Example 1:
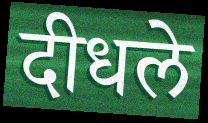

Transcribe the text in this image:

दीधले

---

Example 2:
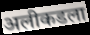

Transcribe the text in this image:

अलीकडला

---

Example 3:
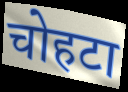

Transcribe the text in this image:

चोहटा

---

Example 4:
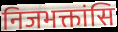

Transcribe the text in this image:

निजभक्तांसि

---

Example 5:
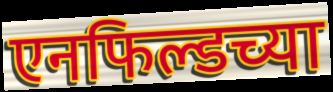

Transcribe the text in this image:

एनफिल्डच्या